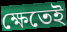
ক্ষেতেই